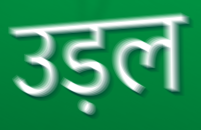
उड़ल